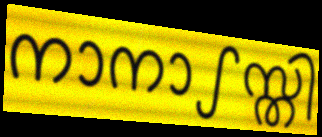
നാനാഽസ്തി